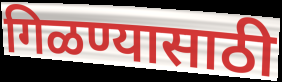
गिळण्यासाठी